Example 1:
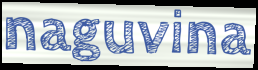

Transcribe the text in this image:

naguvina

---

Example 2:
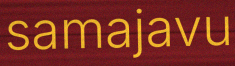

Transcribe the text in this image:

samajavu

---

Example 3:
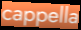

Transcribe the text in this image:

cappella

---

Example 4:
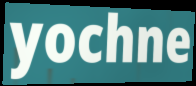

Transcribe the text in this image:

yochne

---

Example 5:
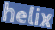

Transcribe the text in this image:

helix